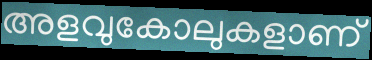
അളവുകോലുകളാണ്